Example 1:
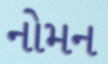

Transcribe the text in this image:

નોમન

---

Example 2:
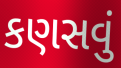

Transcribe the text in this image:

કણસવું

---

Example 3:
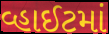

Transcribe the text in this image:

વ્હાઈટમાં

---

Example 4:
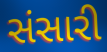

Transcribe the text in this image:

સંસારી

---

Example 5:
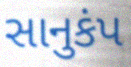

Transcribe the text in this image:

સાનુકંપ